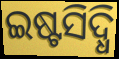
ଇଷ୍ଟସିଦ୍ଧି